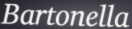
Bartonella